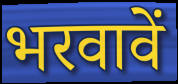
भरवावें